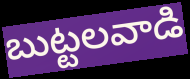
బుట్టలవాడి